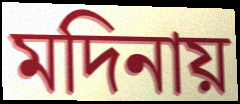
মদিনায়